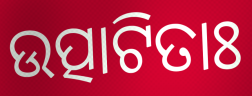
ଉତ୍ପାଟିତାଃ